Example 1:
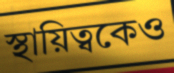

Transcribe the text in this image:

স্থায়িত্বকেও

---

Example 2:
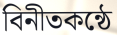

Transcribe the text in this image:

বিনীতকন্ঠে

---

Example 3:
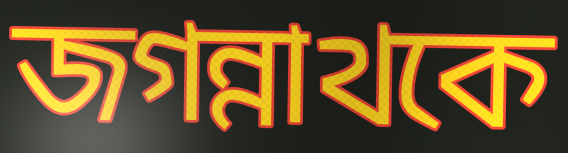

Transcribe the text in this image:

জগন্নাথকে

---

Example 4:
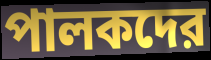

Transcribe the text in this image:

পালকদের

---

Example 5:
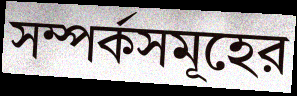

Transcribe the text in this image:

সম্পর্কসমূহের